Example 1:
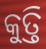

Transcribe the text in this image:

କୁତ୍ତି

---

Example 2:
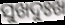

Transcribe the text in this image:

ସୁଖଦୁଃଖ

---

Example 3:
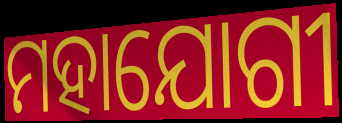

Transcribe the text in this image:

ମହାଯୋଗୀ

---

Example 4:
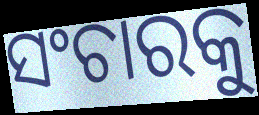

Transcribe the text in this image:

ସଂଚାରକୁ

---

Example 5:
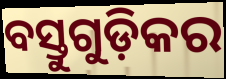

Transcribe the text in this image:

ବସ୍ତୁଗୁଡ଼ିକର